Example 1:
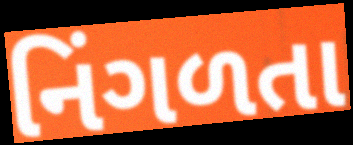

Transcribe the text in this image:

નિંગળતા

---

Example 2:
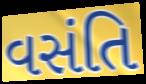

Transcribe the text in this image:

વસંતિ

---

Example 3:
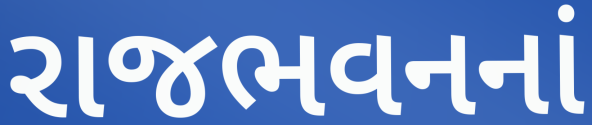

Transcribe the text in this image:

રાજભવનનાં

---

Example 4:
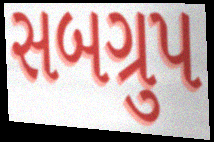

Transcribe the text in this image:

સબગ્રુપ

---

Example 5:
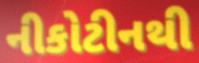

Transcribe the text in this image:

નીકોટીનથી